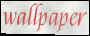
wallpaper